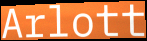
Arlott